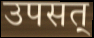
उपसत्